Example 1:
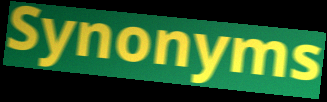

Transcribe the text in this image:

Synonyms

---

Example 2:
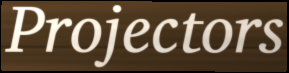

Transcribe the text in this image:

Projectors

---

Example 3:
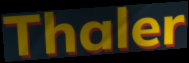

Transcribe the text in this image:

Thaler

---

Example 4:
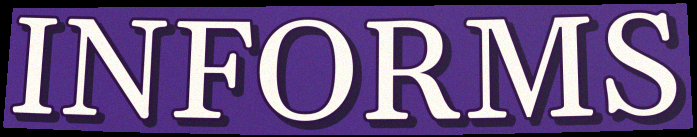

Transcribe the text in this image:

INFORMS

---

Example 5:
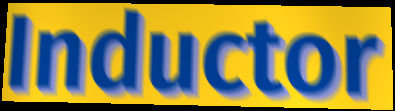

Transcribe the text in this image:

Inductor